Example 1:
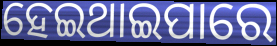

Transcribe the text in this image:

ହେଇଥାଇପାରେ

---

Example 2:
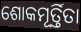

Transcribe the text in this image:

ଶୋକମୂର୍ତ୍ତିତା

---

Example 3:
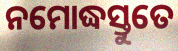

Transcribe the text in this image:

ନମୋଦ୍ଧସ୍ତୁତେ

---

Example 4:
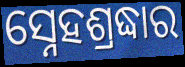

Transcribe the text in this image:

ସ୍ନେହଶ୍ରଦ୍ଧାର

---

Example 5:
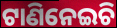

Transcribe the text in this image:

ଟାଣିନେଇଚି